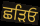
ਛੜਿਓ